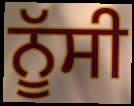
ਨੂੱਸੀ